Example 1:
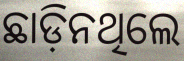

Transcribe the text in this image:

ଛାଡ଼ିନଥିଲେ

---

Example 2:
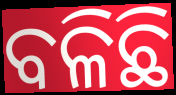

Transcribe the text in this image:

ବଳିଛି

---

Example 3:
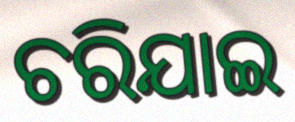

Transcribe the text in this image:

ଚରିଯାଇ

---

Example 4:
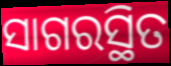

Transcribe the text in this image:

ସାଗରସ୍ଥିତ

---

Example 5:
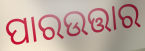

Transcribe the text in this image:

ପାରଉତ୍ତାର